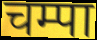
चम्पा